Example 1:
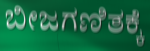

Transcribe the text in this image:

ಬೀಜಗಣಿತಕ್ಕೆ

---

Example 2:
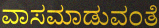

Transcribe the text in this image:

ವಾಸಮಾಡುವಂತೆ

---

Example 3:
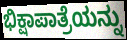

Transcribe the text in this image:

ಭಿಕ್ಷಾಪಾತ್ರೆಯನ್ನು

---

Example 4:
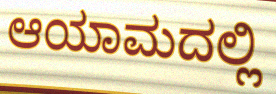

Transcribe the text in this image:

ಆಯಾಮದಲ್ಲಿ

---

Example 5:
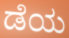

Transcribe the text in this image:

ಡೆಯ